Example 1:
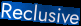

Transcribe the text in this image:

Reclusive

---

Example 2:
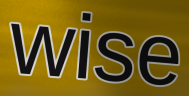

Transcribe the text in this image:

wise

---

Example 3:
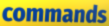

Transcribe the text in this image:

commands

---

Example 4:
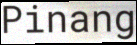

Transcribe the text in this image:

Pinang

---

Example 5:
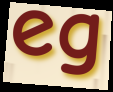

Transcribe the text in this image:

eg